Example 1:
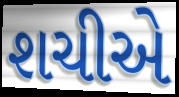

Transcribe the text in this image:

શચીએ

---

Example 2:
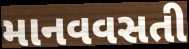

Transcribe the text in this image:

માનવવસતી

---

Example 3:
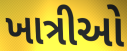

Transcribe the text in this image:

ખાત્રીઓ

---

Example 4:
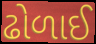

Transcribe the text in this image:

ઢોળાઈ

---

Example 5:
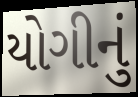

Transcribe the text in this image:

યોગીનું